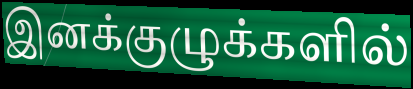
இனக்குழுக்களில்